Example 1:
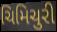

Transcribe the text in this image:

ચિમિચુરી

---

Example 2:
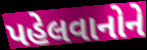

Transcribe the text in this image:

પહેલવાનોને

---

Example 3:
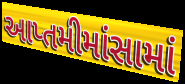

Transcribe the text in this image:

આપ્તમીમાંસામાં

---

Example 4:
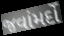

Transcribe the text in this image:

જવાંમર્દો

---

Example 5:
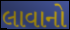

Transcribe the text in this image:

લાવાનો